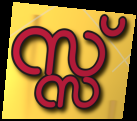
സ്സ്